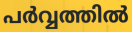
പർവ്വത്തിൽ